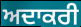
ਅਦਾਕਰੀ